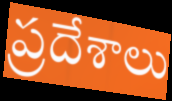
ప్రదేశాలు